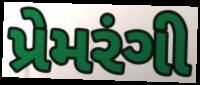
પ્રેમરંગી